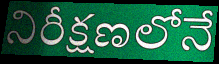
నిరీక్షణలోనే